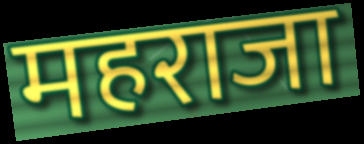
महराजा